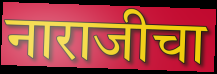
नाराजीचा